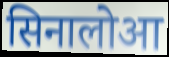
सिनालोआ